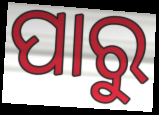
ପାରୁ